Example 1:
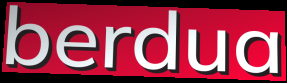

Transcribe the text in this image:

berdua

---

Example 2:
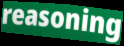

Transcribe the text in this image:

reasoning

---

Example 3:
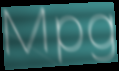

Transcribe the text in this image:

Mpg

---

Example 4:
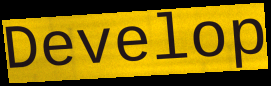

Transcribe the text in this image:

Develop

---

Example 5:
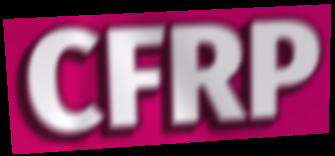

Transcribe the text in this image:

CFRP